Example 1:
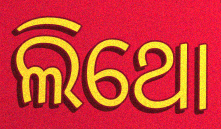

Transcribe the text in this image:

ଲିଥୋ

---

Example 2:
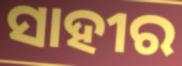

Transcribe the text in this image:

ସାହୀର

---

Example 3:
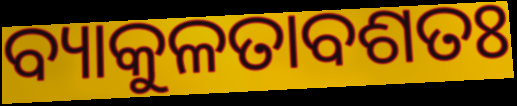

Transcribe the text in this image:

ବ୍ୟାକୁଳତାବଶତଃ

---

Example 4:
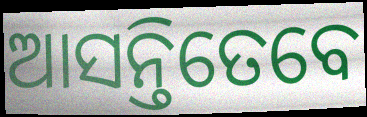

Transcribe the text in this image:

ଆସନ୍ତିତେବେ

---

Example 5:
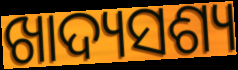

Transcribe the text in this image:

ଖାଦ୍ୟସଶ୍ୟ